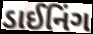
ડાઈનિંગ